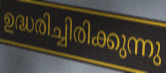
ഉദ്ധരിച്ചിരിക്കുന്നു